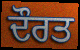
ਦੌਰਤ